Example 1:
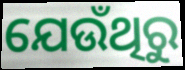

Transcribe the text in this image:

ଯେଉଁଥିରୁ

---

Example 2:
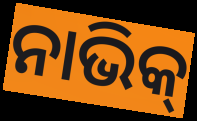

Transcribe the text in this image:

ନାଭିକ୍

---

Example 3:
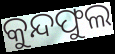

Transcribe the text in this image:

କୁନ୍ଦଫୁଲ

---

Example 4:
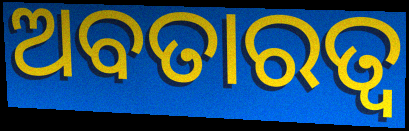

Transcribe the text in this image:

ଅବତାରତ୍ୱ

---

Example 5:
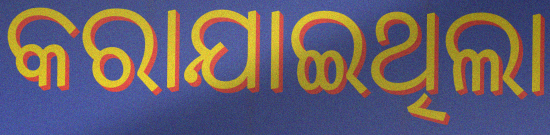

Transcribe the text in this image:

କରାଯାଇଥିଲା